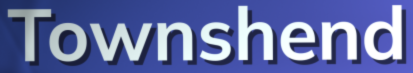
Townshend